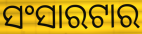
ସଂସାରଟାର